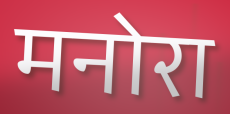
मनोरा